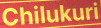
Chilukuri